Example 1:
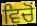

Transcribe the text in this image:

ਵਿਚੋਂ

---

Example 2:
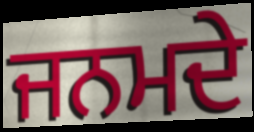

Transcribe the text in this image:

ਜਨਮਦੇ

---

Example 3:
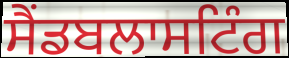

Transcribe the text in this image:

ਸੈਂਡਬਲਾਸਟਿੰਗ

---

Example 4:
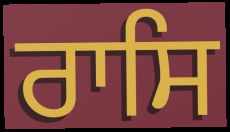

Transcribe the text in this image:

ਰਾਸਿ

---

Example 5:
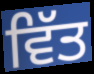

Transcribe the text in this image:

ਵਿੱਤ